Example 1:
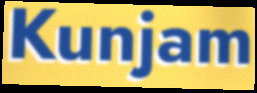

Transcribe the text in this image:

Kunjam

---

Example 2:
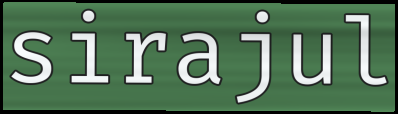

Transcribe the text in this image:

sirajul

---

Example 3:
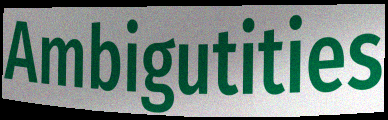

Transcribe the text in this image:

Ambigutities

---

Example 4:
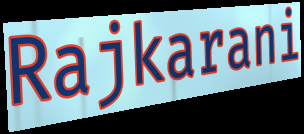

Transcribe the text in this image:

Rajkarani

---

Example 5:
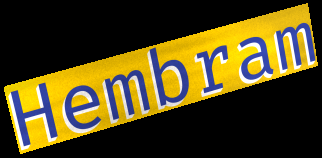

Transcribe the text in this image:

Hembram